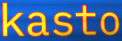
kasto